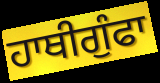
ਹਾਥੀਗੁੰਫਾ